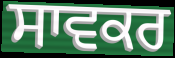
ਸਾਵਕਰ